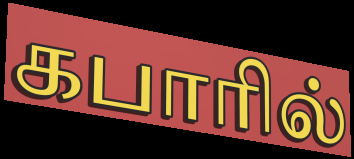
கபாரில்